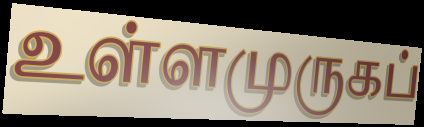
உள்ளமுருகப்